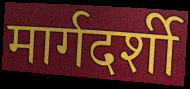
मार्गदर्शी